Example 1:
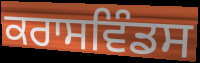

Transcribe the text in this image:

ਕਰਾਸਵਿੰਡਸ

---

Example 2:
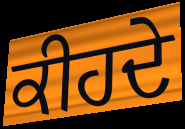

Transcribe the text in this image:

ਕੀਹਦੇ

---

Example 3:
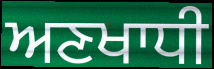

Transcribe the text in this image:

ਅਣਖਾਧੀ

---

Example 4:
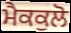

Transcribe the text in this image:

ਮੈਕਕੁਲੋ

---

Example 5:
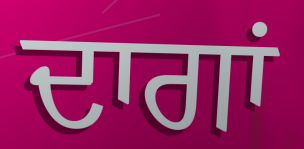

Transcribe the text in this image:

ਦਾਗਾਂ